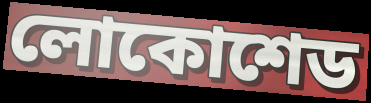
লোকোশেড